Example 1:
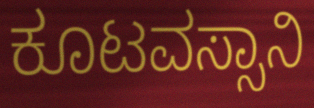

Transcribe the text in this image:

ಕೂಟವಸ್ಸಾನಿ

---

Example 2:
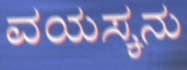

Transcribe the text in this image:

ವಯಸ್ಕನು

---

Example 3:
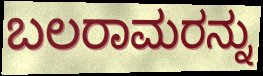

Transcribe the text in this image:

ಬಲರಾಮರನ್ನು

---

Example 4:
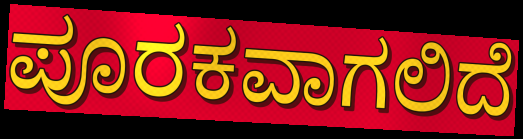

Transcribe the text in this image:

ಪೂರಕವಾಗಲಿದೆ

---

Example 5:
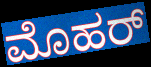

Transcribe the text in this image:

ಮೊಹರ್